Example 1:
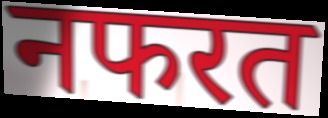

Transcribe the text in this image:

नफरत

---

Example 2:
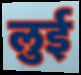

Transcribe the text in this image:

लुई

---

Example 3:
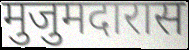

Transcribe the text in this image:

मुजुमदारास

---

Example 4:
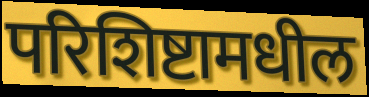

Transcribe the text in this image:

परिशिष्टामधील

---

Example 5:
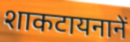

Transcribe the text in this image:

शाकटायनानें